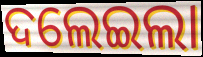
ଦଲେଇଲା